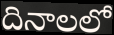
దినాలలో